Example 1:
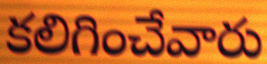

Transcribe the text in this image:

కలిగించేవారు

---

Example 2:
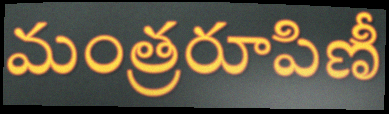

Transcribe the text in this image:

మంత్రరూపిణీ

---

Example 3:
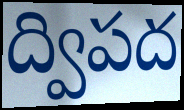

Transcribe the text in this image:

ద్విపద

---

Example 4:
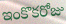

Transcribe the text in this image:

ఇంకొకరోజు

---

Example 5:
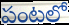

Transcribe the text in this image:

పంటలో